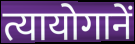
त्यायोगानें